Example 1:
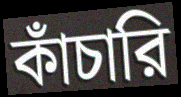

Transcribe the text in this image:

কাঁচারি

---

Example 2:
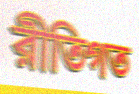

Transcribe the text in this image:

রীতিগত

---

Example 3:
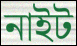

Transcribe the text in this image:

নাইট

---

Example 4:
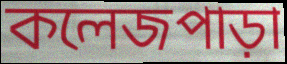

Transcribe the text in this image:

কলেজপাড়া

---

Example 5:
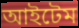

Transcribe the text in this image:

আইটেম